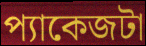
প্যাকেজটা